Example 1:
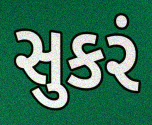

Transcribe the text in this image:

સુકરં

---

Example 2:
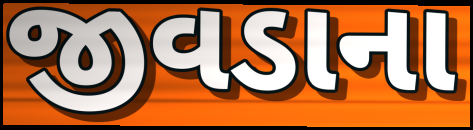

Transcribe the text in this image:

જીવડાના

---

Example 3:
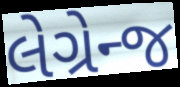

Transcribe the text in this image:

લેગ્રેન્જ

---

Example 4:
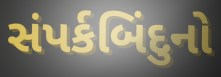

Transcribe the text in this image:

સંપર્કબિંદુનો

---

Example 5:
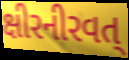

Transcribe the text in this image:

ક્ષીરનીરવત્